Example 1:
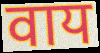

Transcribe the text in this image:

वाय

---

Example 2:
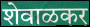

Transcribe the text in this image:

शेवाळकर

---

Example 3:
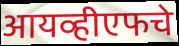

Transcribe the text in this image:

आयव्हीएफचे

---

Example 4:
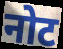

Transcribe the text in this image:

नोट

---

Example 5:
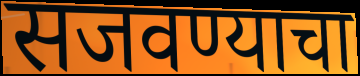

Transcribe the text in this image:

सजवण्याचा